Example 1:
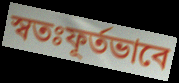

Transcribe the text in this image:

স্বতঃফূর্তভাবে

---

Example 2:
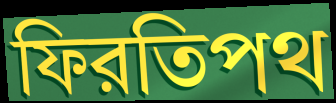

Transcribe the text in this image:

ফিরতিপথ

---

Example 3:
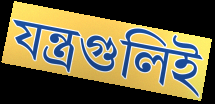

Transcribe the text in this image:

যন্ত্রগুলিই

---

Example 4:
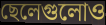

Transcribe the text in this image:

ছেলেগুলোও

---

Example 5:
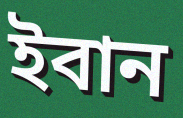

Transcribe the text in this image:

ইবান